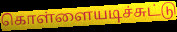
கொள்ளையடிச்சுட்டு